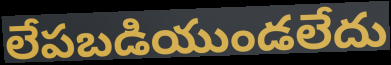
లేపబడియుండలేదు